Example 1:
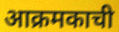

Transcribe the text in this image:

आक्रमकाची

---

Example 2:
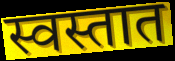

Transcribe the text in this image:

स्वस्तात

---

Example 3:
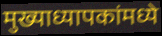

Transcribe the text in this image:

मुख्याध्यापकांमध्ये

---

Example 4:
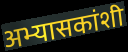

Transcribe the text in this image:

अभ्यासकांशी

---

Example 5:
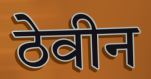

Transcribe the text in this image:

ठेवीन